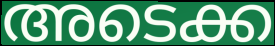
അടെക്ക